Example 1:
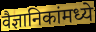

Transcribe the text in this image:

वैज्ञानिकांमध्ये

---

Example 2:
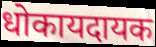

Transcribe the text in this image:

धोकायदायक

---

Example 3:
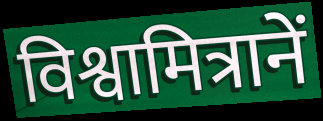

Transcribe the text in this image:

विश्वामित्रानें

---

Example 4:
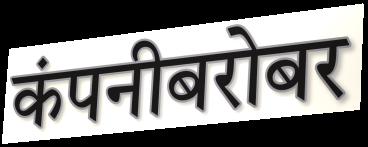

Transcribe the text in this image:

कंपनीबरोबर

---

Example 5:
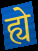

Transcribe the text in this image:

ह्ये